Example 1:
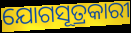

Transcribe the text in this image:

ଯୋଗସୂତ୍ରକାରୀ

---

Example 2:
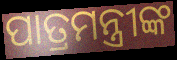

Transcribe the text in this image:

ପାତ୍ରମନ୍ତ୍ରୀଙ୍କ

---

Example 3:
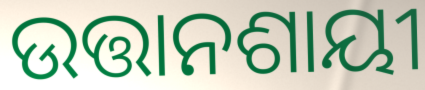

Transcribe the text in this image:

ଉତ୍ତାନଶାୟୀ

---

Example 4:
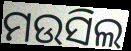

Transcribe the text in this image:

ମଉସିଲ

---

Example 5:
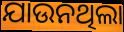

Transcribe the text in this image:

ଯାଉନଥିଲା